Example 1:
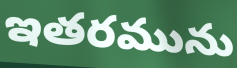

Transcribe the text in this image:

ఇతరమును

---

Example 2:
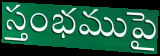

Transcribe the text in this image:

స్తంభముపై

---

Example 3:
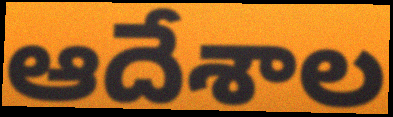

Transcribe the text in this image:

ఆదేశాల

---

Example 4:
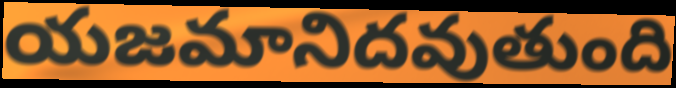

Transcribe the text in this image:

యజమానిదవుతుంది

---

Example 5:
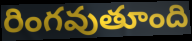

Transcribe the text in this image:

రింగవుతూంది